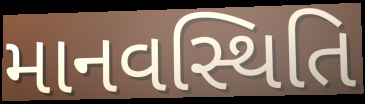
માનવસ્થિતિ